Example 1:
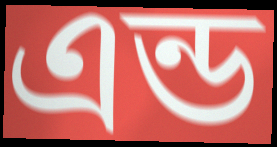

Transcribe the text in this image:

এন্ড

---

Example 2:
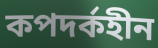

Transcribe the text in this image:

কপদর্কহীন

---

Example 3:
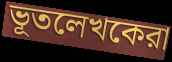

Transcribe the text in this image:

ভূতলেখকেরা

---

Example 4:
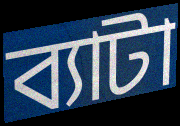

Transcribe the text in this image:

ব্যাটা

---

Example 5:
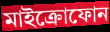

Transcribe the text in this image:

মাইক্রোফোন